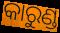
କାରୁଣ୍ଡ